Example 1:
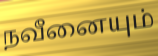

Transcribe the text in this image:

நவீனையும்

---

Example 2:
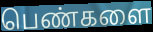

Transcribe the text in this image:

பெண்களை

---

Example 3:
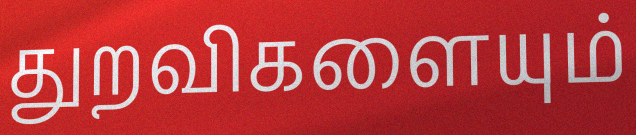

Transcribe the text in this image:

துறவிகளையும்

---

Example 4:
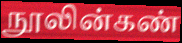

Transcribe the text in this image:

நூலின்கண்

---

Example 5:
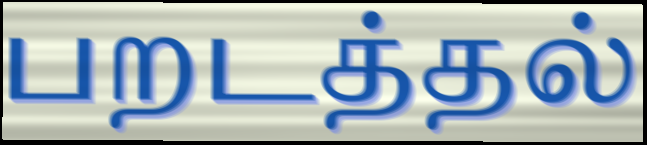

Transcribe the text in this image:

பறடத்தல்